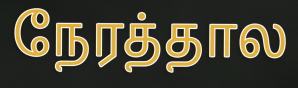
நேரத்தால